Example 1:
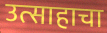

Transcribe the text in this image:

उत्साहाचा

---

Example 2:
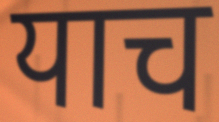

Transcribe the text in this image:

याच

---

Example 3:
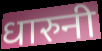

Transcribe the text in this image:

धारुनी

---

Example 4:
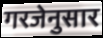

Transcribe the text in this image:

गरजेनुसार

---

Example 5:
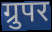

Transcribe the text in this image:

ग्रुपर